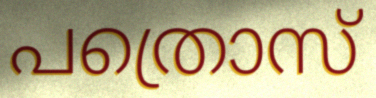
പത്രൊസ്